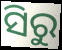
ସିରୁ